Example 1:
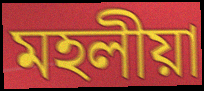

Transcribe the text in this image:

মহলীয়া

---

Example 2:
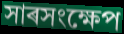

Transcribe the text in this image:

সাৰসংক্ষেপ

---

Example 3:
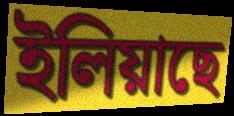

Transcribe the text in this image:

ইলিয়াছে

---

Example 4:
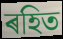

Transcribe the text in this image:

ৰহিত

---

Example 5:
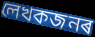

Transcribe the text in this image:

লেখকজনৰ